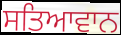
ਸਤਿਆਵਾਨ